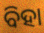
ବିହା